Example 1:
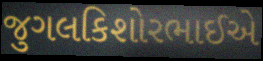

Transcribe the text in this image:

જુગલકિશોરભાઈએ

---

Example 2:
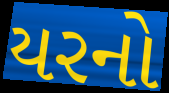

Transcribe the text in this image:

યરનો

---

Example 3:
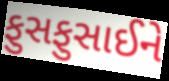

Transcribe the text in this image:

ફુસફુસાઈને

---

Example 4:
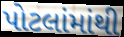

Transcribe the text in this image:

પોટલાંમાંથી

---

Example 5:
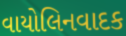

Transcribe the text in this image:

વાયોલિનવાદક